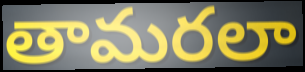
తామరలా